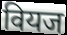
वियज